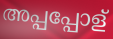
അപ്പപ്പോള്